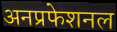
अनप्रफेशनल